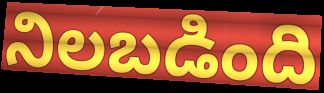
నిలబడింది